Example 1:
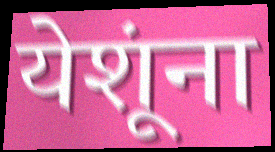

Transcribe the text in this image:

येशूंना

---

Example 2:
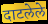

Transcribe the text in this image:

दाटलेले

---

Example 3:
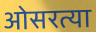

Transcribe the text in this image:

ओसरत्या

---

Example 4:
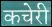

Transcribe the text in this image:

कचेरी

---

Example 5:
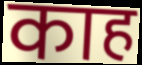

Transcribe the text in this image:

काह